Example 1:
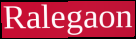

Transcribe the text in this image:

Ralegaon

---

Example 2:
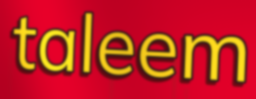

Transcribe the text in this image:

taleem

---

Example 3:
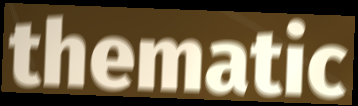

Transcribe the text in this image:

thematic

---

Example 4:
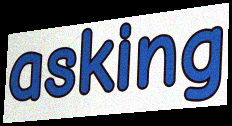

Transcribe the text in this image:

asking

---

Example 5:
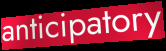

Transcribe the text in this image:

anticipatory